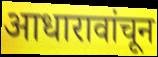
आधारावांचून